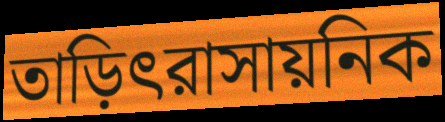
তাড়িৎরাসায়নিক